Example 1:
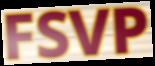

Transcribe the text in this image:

FSVP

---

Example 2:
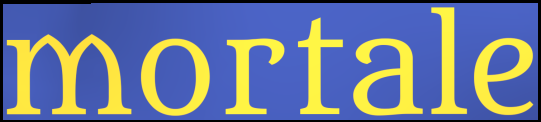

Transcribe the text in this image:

mortale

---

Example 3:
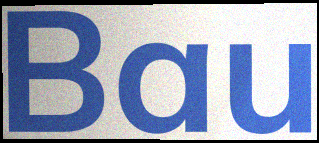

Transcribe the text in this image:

Bau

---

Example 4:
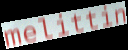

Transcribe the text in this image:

melittin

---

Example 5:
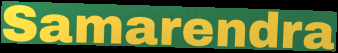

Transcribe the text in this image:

Samarendra